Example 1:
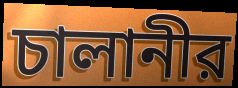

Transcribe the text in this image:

চালানীর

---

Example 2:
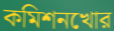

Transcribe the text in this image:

কমিশনখোর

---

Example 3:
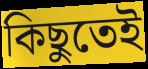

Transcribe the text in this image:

কিছুতেই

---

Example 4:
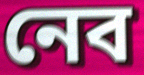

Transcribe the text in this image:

নেব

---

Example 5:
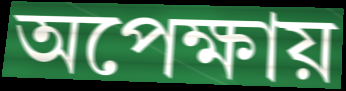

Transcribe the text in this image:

অপেক্ষায়